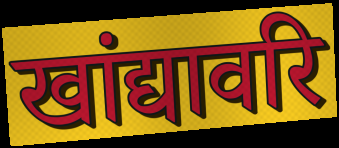
खांद्यावरि